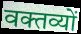
वक्‍तव्‍यों